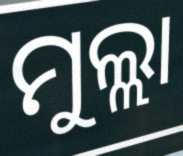
ମୁଲ୍ଲା